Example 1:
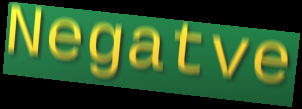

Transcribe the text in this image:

Negatve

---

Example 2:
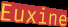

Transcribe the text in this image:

Euxine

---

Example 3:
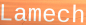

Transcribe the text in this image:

Lamech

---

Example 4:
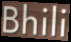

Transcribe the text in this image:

Bhili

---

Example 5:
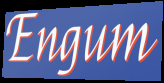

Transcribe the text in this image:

Engum